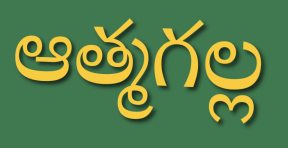
ఆత్మగల్ల